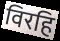
विरहि